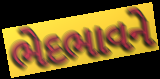
ભેદભાવને